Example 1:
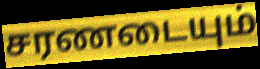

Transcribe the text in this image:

சரணடையும்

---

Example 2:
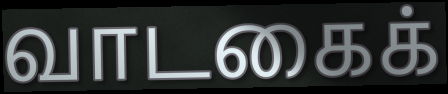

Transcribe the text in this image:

வாடகைக்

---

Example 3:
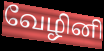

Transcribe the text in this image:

வேழினி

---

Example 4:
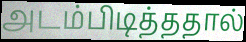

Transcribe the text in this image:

அடம்பிடித்ததால்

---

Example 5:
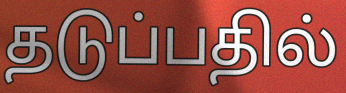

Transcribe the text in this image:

தடுப்பதில்